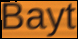
Bayt